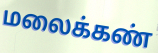
மலைக்கண்